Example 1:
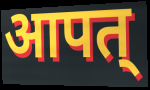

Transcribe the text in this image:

आपत्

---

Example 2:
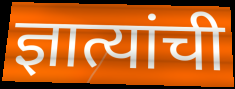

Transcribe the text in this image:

ज्ञात्यांची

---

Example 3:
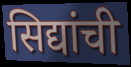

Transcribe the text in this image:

सिद्यांची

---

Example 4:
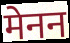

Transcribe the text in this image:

मेनन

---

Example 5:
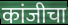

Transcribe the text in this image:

कांजीचा